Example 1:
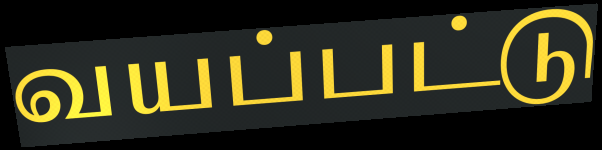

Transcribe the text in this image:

வயப்பட்டு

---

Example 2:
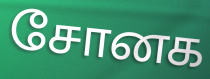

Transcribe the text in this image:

சோனக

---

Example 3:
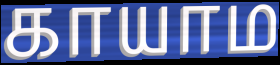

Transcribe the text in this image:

காயாம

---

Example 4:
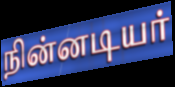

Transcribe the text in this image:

நின்னடியர்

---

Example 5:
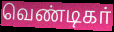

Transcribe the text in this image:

வெண்டிகர்